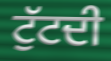
ਟੁੱਟਦੀ